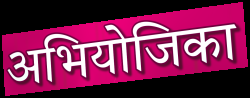
अभियोजिका